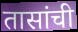
तासांची